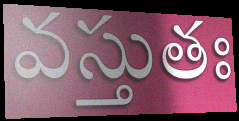
వస్తుతః